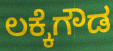
ಲಕ್ಕೆಗೌಡ